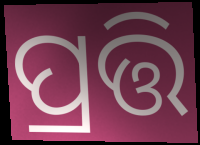
ପ୍ରତ୍ତି